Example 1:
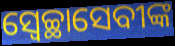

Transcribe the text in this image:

ସ୍ୱେଚ୍ଛାସେବୀଙ୍କ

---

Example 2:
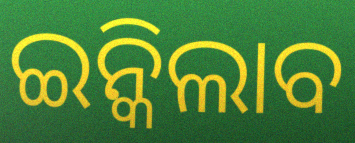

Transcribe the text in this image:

ଇନ୍କିଲାବ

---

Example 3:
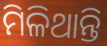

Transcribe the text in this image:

ମିଳିଥାନ୍ତି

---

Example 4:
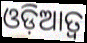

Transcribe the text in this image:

ଓଡ଼ିଆତ୍ୱ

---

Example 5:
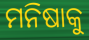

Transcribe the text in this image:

ମନିଷାକୁ